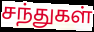
சந்துகள்